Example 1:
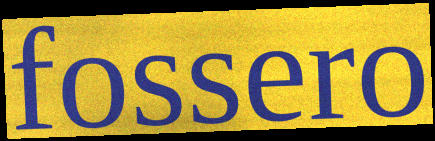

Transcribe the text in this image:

fossero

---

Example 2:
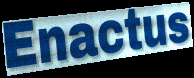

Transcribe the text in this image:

Enactus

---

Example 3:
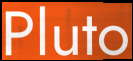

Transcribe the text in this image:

Pluto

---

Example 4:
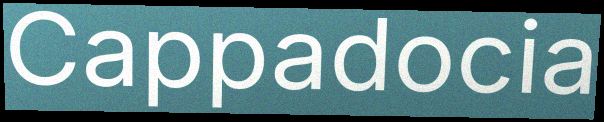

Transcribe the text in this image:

Cappadocia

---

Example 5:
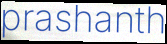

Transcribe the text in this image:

prashanth